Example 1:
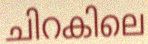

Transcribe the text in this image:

ചിറകിലെ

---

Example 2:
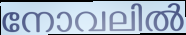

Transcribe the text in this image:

നോവലിൽ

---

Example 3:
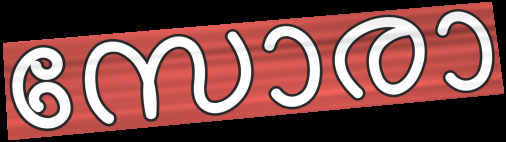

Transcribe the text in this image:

സോരാ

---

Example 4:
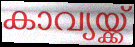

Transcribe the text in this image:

കാവ്യയ്ക്ക്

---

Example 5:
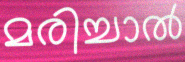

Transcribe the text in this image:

മരിച്ചാൽ